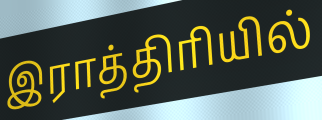
இராத்திரியில்